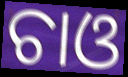
ଚାଓ